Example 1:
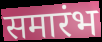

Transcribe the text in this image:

समारंभ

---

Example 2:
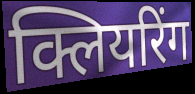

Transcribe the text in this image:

क्लियरिंग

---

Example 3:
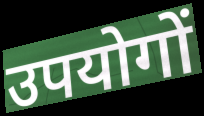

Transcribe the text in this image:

उपयोगों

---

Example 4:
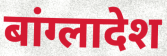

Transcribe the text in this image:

बांग्लादेश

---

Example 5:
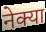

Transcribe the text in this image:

नेक्या